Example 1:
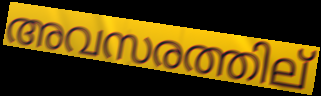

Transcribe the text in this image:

അവസരത്തില്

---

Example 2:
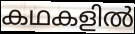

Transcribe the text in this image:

കഥകളിൽ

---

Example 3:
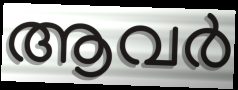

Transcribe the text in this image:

ആവർ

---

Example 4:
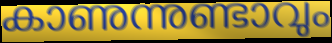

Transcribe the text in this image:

കാണുന്നുണ്ടാവും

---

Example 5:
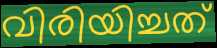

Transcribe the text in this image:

വിരിയിച്ചത്